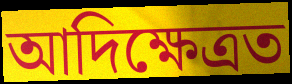
আদিক্ষেত্ৰত